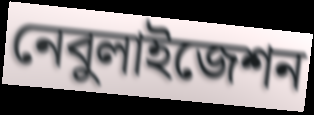
নেবুলাইজেশন